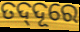
ତଦ୍‍ଦୂରେ